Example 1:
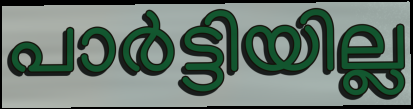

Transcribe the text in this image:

പാർട്ടിയില്ല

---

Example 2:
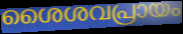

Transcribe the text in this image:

ശൈശവപ്രായം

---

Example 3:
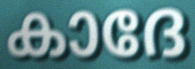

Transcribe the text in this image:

കാദേ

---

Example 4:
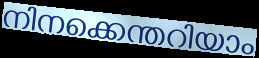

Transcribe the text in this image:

നിനക്കെന്തറിയാം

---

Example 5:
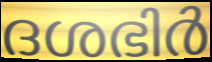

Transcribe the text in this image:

ദശഭിർ